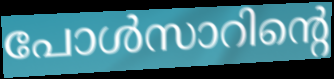
പോൾസാറിന്റെ